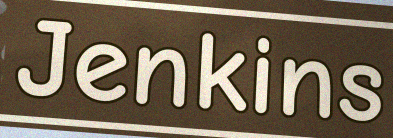
Jenkins